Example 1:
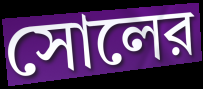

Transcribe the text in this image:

সোলের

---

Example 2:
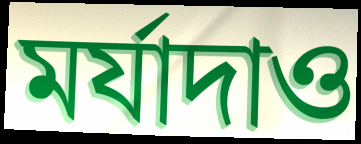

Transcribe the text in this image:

মর্যাদাও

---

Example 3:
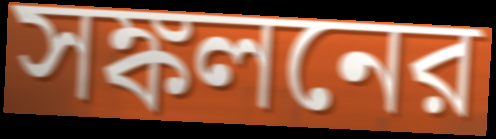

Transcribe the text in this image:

সঙ্কলনের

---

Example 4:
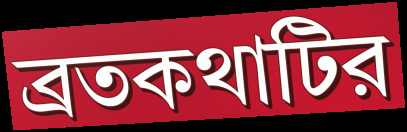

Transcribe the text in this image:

ব্রতকথাটির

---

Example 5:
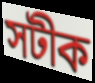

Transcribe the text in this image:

সটীক